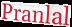
Pranlal